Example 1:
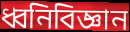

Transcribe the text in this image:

ধ্বনিবিজ্ঞান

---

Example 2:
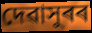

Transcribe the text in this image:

দেৱাসুৰৰ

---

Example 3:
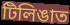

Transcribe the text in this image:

টিলিঙাত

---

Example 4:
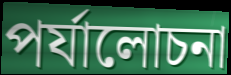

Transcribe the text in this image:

পৰ্যালোচনা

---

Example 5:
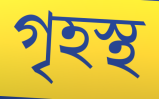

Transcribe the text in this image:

গৃহস্থ